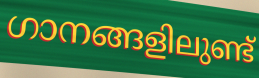
ഗാനങ്ങളിലുണ്ട്